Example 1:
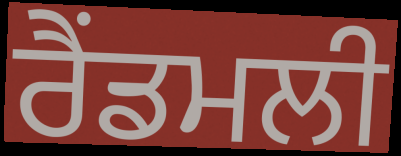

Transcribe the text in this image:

ਰੈਂਡਮਲੀ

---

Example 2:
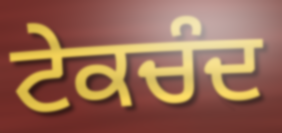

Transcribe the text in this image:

ਟੇਕਚੰਦ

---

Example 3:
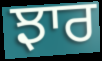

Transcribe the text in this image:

ਝਾਰ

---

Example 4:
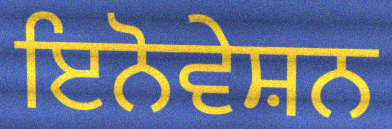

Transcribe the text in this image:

ਇਨੋਵੇਸ਼ਨ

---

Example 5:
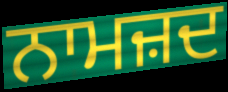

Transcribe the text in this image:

ਨਾਮਜ਼ਦ